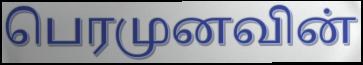
பெரமுனவின்